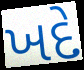
ખદે